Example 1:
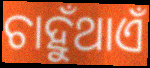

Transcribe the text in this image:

ଚାହୁଁଥାଏଁ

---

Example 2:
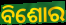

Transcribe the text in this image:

ବିଶୋର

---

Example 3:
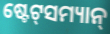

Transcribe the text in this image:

ଷ୍ଟେଟ୍‌ସମ୍ୟାନ୍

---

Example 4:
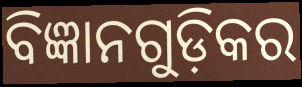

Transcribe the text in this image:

ବିଜ୍ଞାନଗୁଡ଼ିକର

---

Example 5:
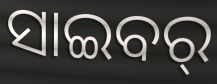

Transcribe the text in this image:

ସାଇବର୍